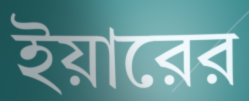
ইয়ারের